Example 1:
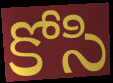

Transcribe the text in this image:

కోసి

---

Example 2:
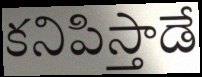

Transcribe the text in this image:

కనిపిస్తాడే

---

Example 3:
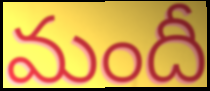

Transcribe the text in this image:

మందీ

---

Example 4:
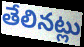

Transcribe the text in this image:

తేలినట్లు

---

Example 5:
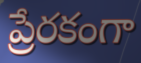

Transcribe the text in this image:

ప్రేరకంగా